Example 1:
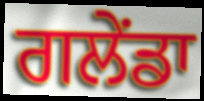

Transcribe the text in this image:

ਗਲੇਂਡਾ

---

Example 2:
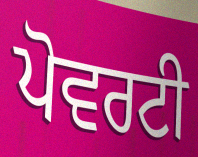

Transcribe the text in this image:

ਪੋਵਰਟੀ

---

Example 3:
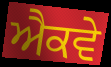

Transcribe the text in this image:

ਐਕਵੇ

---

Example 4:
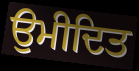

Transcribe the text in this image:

ਉਮੀਦਿਤ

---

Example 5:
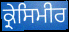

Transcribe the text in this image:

ਕ੍ਰੇਸਿਮੀਰ